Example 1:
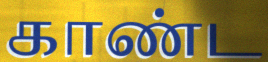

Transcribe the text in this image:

காண்ட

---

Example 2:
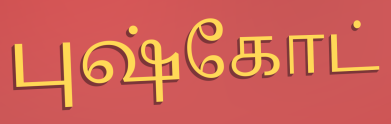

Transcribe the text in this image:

புஷ்கோட்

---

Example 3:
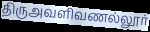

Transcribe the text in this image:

திருஅவளிவணல்லூர்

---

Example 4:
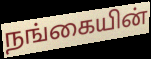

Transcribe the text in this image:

நங்கையின்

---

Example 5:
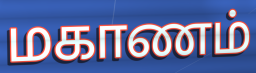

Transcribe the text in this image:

மகாணம்